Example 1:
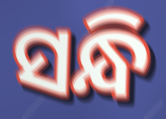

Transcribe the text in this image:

ସନ୍ଧି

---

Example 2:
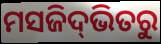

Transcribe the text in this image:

ମସଜିଦ୍‌ଭିତରୁ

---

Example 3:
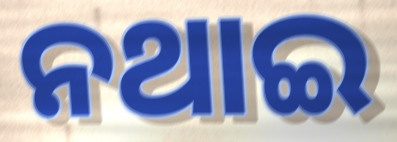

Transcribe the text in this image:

ନଥାଇ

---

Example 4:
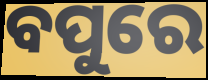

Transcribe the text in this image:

ବପୁରେ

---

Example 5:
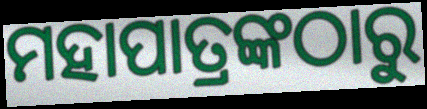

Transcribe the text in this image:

ମହାପାତ୍ରଙ୍କଠାରୁ